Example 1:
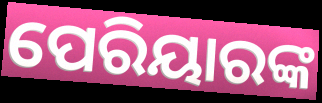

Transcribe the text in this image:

ପେରିୟାରଙ୍କ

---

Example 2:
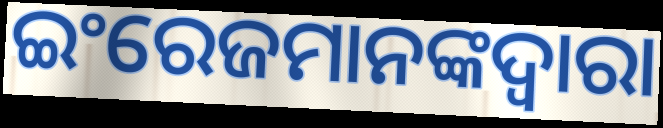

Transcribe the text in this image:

ଇଂରେଜମାନଙ୍କଦ୍ୱାରା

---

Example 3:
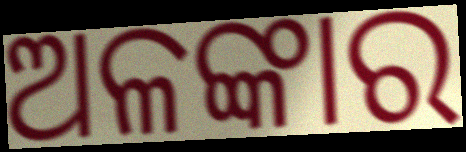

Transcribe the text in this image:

ଅଳଙ୍କାର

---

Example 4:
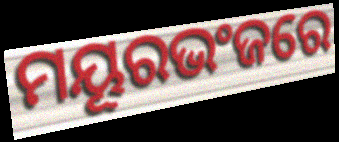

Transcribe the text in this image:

ମୟୂରଭଂଜରେ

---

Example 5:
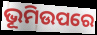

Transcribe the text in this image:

ଭୂମିଉପରେ